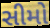
સીમો